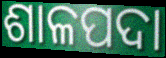
ଶାଳପଦା